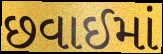
છવાઈમાં